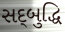
સદ્‌બુદ્ધિ